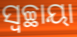
ସ୍ୱଚ୍ଛାୟା